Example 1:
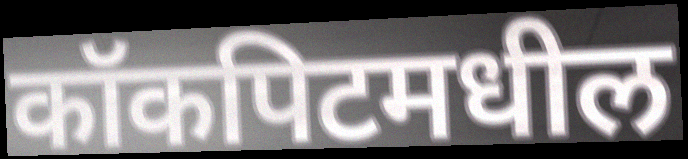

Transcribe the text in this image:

कॉकपिटमधील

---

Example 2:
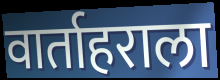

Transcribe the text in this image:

वार्ताहराला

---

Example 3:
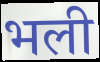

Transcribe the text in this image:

भली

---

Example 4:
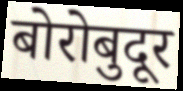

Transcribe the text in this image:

बोरोबुदूर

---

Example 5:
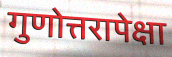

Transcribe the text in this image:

गुणोत्तरापेक्षा